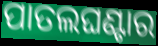
ପାତଲଘଣ୍ଟାର